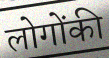
लोगोंकी